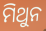
ମିଥୁନ